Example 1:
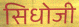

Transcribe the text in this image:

सिधोजी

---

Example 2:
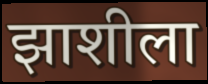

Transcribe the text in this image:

झाशीला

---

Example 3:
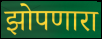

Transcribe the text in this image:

झोपणारा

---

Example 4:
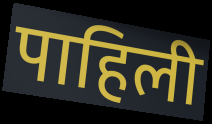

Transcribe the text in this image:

पाहिली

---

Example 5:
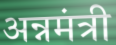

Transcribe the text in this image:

अन्नमंत्री